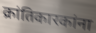
क्रांतिकारकांना